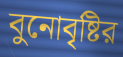
বুনোবৃষ্টির